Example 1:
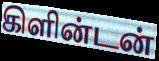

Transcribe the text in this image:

கிளின்டன்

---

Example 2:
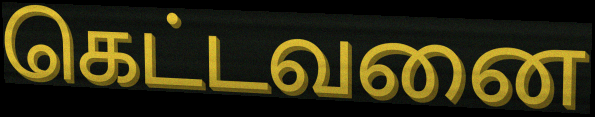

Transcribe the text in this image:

கெட்டவனை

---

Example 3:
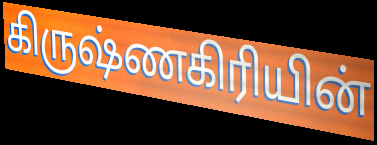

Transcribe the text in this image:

கிருஷ்ணகிரியின்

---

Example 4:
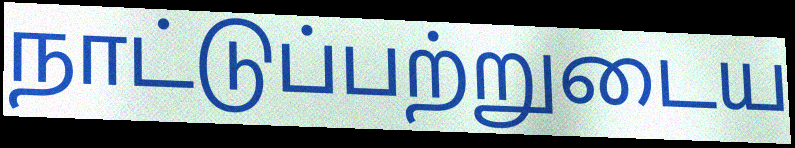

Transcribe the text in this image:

நாட்டுப்பற்றுடைய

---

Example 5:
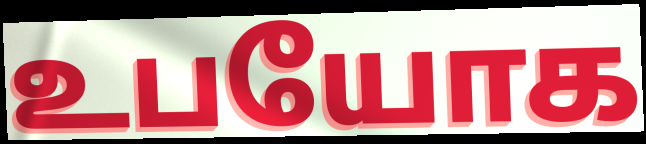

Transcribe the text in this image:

உபயோக